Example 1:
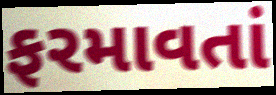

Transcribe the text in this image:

ફરમાવતાં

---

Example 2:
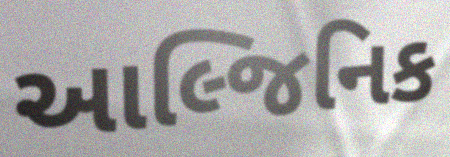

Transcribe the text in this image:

આલ્જિનિક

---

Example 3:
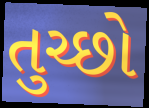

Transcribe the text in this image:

તુચ્છો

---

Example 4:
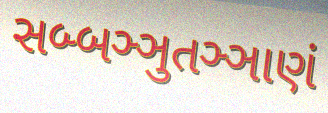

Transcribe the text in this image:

સબ્બઞ્ઞુતઞ્ઞાણં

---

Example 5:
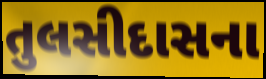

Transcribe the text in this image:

તુલસીદાસના